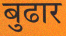
बुढार